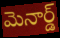
మెనార్డ్